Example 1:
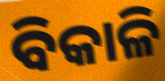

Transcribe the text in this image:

ବିକାଳି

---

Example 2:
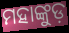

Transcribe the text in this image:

ମହାଙ୍କୁଡ଼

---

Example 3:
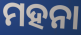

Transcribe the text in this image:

ମହନା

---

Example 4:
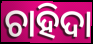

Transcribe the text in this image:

ଚାହିଦା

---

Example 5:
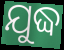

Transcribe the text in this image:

ଯୁଦ୍ଧ